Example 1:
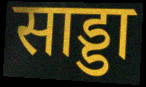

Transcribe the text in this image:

साड्डा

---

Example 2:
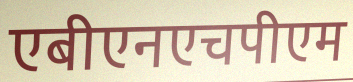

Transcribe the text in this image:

एबीएनएचपीएम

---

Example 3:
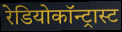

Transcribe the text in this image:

रेडियोकॉन्ट्रास्ट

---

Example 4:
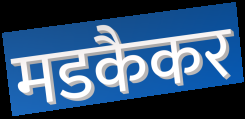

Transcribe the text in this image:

मडकैकर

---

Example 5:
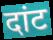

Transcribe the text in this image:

दांट